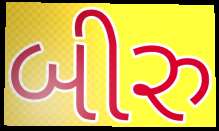
બીરુ